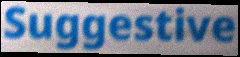
Suggestive